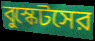
বুস্কেটসের